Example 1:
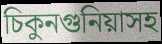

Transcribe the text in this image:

চিকুনগুনিয়াসহ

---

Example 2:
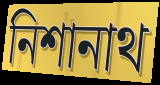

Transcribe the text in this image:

নিশানাথ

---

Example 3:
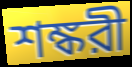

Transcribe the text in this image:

শঙ্করী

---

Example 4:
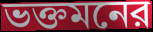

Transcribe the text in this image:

ভক্তমনের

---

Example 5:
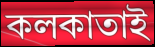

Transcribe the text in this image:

কলকাতাই